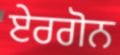
ਏਰਗੋਨ